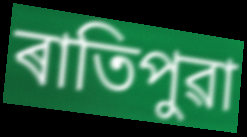
ৰাতিপুৱা